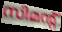
സിമന്റ്